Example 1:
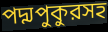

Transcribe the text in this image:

পদ্মপুকুরসহ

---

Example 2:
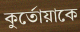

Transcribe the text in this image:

কুর্তোয়াকে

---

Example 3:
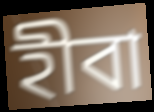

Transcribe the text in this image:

হীবা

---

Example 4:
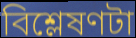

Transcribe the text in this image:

বিশ্লেষণটা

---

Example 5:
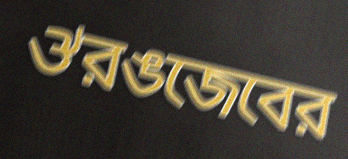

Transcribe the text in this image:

ঔরঙজেবের